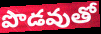
పొడవుతో